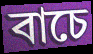
বাচে